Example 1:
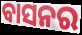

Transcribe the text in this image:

ବାସନର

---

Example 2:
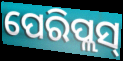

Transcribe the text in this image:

ପେରିପ୍ଲସ୍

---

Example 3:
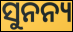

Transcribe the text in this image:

ସୁନନ୍ୟ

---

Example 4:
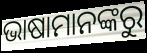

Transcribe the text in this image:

ଭାଷାମାନଙ୍କରୁ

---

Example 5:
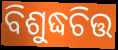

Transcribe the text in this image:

ବିଶୁଦ୍ଧଚିତ୍ତ